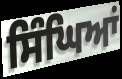
ਸਿੰਘਿਆਂ